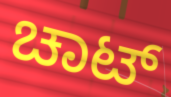
ಚಾಟ್